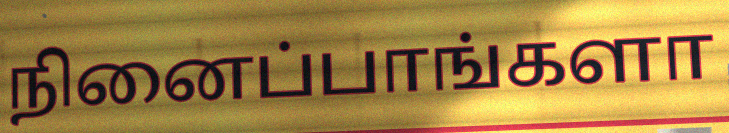
நினைப்பாங்களா